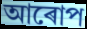
আৰোপ